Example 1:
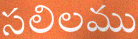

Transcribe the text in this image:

సలిలము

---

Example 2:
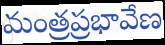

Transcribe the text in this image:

మంత్రప్రభావేణ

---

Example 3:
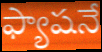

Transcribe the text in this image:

ఫ్యాషనే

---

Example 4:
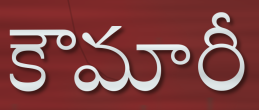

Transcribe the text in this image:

కౌమారీ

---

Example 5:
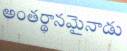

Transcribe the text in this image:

అంతర్థానమైనాడు